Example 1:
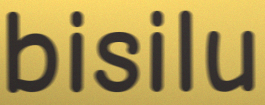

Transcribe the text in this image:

bisilu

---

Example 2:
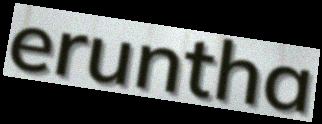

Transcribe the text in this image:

eruntha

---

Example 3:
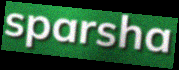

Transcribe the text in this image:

sparsha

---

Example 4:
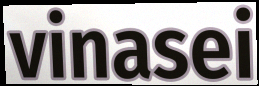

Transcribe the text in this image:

vinasei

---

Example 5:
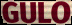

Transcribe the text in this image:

GULO